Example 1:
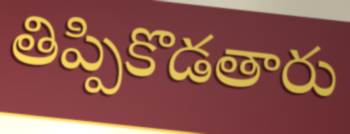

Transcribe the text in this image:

తిప్పికొడతారు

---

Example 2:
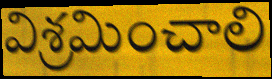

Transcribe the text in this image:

విశ్రమించాలి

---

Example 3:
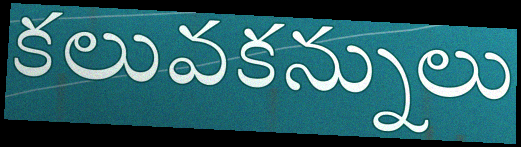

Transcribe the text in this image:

కలువకన్నులు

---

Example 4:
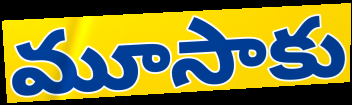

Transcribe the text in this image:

మూసాకు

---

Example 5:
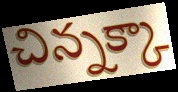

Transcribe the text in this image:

చిన్నక్కా